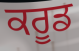
ਕਰੂਡ